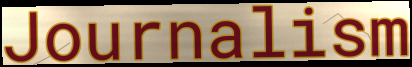
Journalism